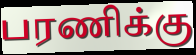
பரணிக்கு